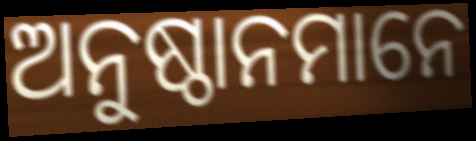
ଅନୁଷ୍ଠାନମାନେ